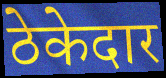
ठेकेदार